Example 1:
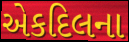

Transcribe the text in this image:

એકદિલના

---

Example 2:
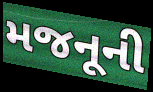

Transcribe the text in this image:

મજનૂની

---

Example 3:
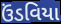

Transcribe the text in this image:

ઉંડવિયા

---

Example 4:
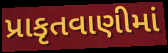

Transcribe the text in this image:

પ્રાકૃતવાણીમાં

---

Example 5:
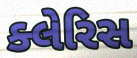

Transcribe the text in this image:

ક્લેરિસ